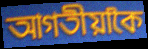
আগতীয়াকৈ